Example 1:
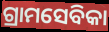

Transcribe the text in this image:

ଗ୍ରାମସେବିକା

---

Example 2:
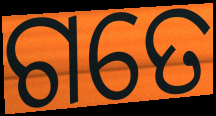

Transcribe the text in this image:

ଗତେ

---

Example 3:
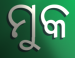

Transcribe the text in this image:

ମୁକ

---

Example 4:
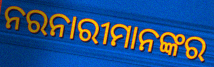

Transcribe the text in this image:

ନରନାରୀମାନଙ୍କର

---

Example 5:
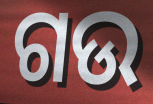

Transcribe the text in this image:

ଗଉ